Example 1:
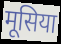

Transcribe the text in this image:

मूसिया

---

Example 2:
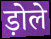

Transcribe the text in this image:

ड़ोले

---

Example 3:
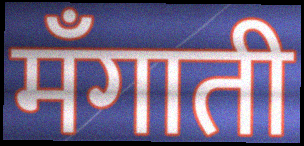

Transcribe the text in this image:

मँगाती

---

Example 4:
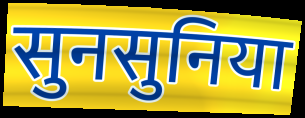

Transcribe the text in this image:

सुनसुनिया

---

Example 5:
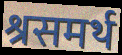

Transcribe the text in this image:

श्रसमर्थ